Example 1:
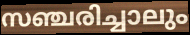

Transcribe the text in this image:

സഞ്ചരിച്ചാലും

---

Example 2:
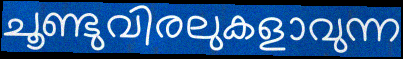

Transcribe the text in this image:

ചൂണ്ടുവിരലുകളാവുന്ന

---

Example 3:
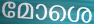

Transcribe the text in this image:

മോശെ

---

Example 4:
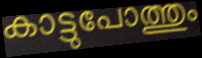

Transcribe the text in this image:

കാട്ടുപോത്തും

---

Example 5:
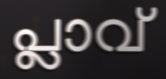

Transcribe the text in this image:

പ്ലാവ്